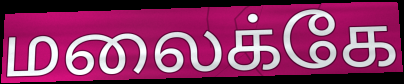
மலைக்கே